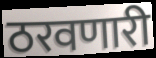
ठरवणारी